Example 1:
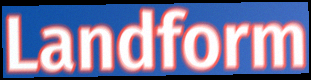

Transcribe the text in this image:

Landform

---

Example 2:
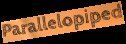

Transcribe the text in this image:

Parallelopiped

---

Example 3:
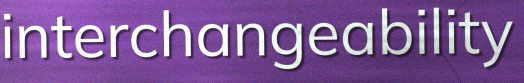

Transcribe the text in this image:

interchangeability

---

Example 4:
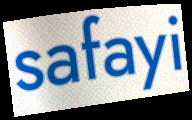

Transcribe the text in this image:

safayi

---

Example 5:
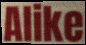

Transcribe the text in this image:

Alike